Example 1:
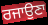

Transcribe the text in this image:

ਰਜਾਉਣਾ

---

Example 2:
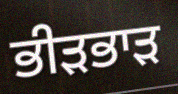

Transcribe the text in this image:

ਭੀੜਭਾੜ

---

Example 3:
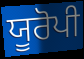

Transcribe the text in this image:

ਯੂਰੋਪੀ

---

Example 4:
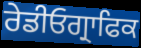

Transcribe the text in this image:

ਰੇਡੀਓਗ੍ਰਾਫਿਕ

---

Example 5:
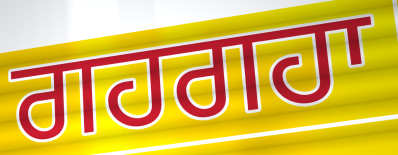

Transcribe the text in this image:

ਗਹਗਹਾ